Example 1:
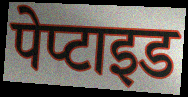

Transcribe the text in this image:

पेप्टाइड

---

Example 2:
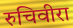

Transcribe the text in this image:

रुचिवीरा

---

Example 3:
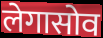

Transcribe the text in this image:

लेगासोव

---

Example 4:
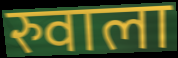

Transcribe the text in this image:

रुवाला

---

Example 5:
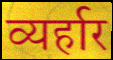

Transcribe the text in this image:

व्यर्हार